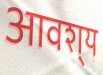
आवश्य